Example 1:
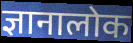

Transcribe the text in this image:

ज्ञानालोक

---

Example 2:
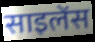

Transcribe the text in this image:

साइलेंस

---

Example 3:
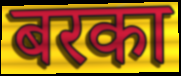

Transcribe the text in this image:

बरका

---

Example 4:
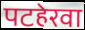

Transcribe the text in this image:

पटहेरवा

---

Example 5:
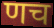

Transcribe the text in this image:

णच